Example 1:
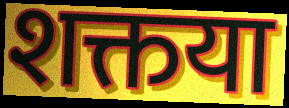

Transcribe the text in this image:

शक्तया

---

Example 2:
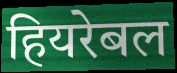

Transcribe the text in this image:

हियरेबल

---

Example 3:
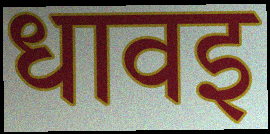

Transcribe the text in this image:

धावइ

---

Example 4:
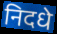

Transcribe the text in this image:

निदधे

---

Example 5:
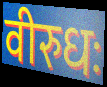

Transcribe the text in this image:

वीरुधः